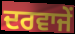
ਦਰਵਾਜੇਂ